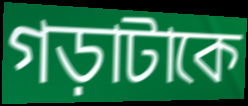
গড়াটাকে